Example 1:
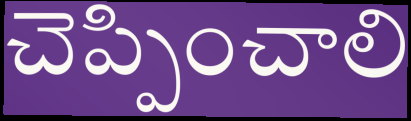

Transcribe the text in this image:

చెప్పించాలి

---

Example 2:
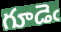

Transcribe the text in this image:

గూడెఁ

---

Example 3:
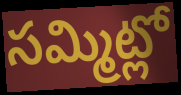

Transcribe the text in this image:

సమ్మిట్లో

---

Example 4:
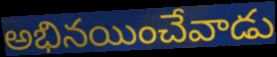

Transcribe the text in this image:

అభినయించేవాడు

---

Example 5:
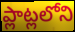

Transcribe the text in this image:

ప్లాట్లలోని